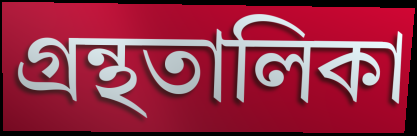
গ্ৰন্থতালিকা